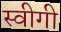
स्वीगी